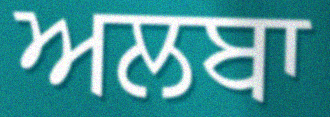
ਅਲਬਾ